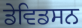
ਡੇਵਿਡਸਨ